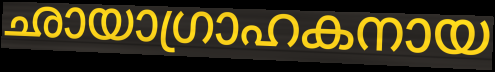
ഛായാഗ്രാഹകനായ